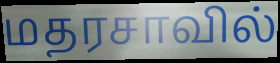
மதரசாவில்